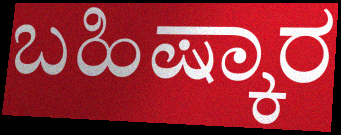
ಬಹಿಷ್ಕಾರ